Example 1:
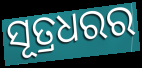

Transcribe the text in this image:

ସୂତ୍ରଧରର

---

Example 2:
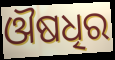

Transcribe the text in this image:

ଔଷଧିର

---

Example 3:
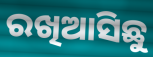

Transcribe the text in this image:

ରଖିଆସିଛୁ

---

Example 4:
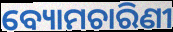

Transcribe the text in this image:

ବ୍ୟୋମଚାରିଣୀ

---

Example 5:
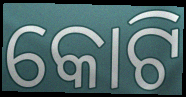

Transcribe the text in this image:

କୋଟି